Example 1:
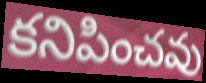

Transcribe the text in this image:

కనిపించవు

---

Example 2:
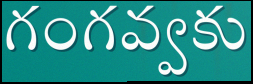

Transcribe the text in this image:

గంగవ్వకు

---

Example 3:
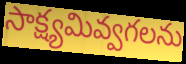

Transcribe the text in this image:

సాక్ష్యమివ్వగలను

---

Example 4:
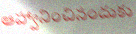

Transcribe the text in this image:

ఆహ్వానించినందుకు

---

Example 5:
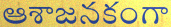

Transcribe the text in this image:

ఆశాజనకంగా